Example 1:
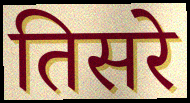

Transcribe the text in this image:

तिसरे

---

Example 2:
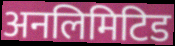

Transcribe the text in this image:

अनलिमिटिड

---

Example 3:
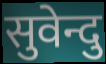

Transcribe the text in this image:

सुवेन्दु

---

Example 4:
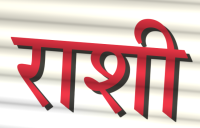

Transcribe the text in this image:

राशी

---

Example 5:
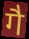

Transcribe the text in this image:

गै